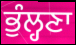
ਭੁੰਲ੍ਹਣਾ